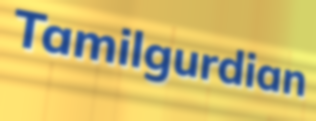
Tamilgurdian